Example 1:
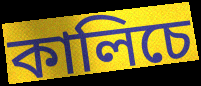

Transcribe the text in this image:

কালিচে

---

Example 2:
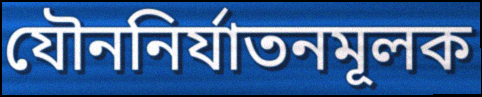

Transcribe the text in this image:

যৌননির্যাতনমূলক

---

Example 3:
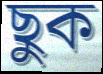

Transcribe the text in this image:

ছুক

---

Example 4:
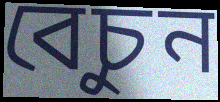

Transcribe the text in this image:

বেচুন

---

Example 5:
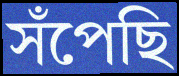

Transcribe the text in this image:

সঁপেছি